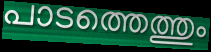
പാടത്തെത്തും